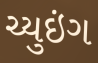
ચ્યુઇંગ